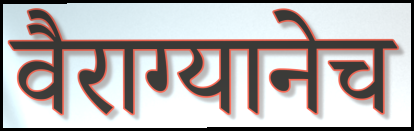
वैराग्यानेच